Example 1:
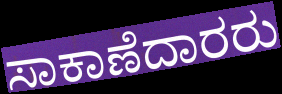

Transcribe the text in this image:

ಸಾಕಾಣೆದಾರರು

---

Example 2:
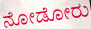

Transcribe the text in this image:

ನೋಡೋರು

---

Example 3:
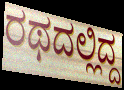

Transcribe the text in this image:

ರಥದಲ್ಲಿದ್ದ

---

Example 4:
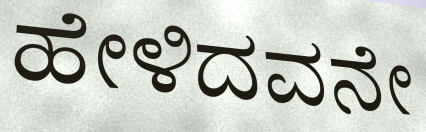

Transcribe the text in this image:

ಹೇಳಿದವನೇ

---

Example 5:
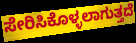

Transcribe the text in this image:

ಸೇರಿಸಿಕೊಳ್ಳಲಾಗುತ್ತದೆ